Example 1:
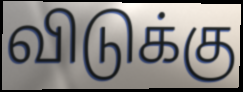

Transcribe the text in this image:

விடுக்கு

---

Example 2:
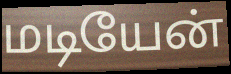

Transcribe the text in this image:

மடியேன்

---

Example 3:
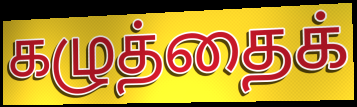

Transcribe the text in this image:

கழுத்தைக்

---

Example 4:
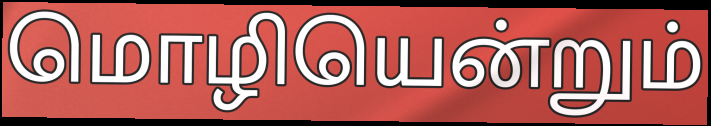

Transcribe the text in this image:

மொழியென்றும்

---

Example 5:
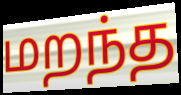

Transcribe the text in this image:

மறந்த